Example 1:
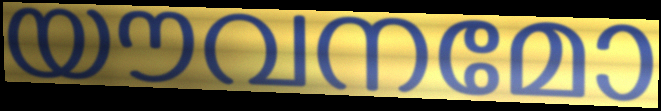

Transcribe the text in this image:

യൗവനമോ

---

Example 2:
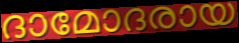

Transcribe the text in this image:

ദാമോദരായ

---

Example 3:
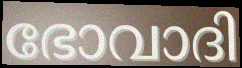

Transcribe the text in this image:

ഭോവാദി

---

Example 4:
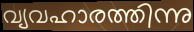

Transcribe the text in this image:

വ്യവഹാരത്തിന്നു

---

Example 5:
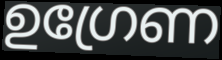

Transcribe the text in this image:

ഉഗ്രേണ